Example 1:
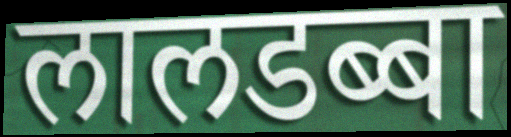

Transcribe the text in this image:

लालडब्बा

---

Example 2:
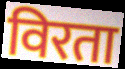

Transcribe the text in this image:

विरता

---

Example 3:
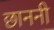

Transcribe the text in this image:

छाननी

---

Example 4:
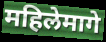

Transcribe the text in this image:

महिलेमागे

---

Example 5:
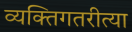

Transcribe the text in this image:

व्यक्तिगतरीत्या